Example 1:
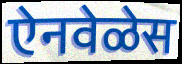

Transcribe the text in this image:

ऐनवेळेस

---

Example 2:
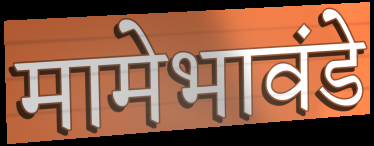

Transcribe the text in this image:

मामेभावंडे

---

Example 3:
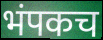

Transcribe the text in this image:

भंपकच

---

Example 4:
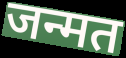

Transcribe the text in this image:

जन्मत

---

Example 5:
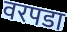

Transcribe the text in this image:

वरपडा